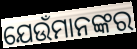
ଯେଉଁମାନଙ୍କର